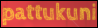
pattukuni